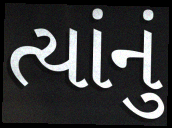
ત્યાંનું